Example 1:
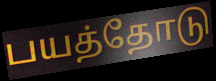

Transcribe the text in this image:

பயத்தோடு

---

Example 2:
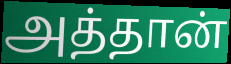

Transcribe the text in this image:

அத்தான்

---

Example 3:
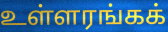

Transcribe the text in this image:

உள்ளரங்கக்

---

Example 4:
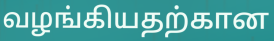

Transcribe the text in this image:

வழங்கியதற்கான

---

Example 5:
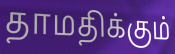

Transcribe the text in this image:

தாமதிக்கும்